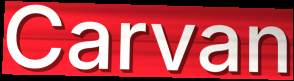
Carvan